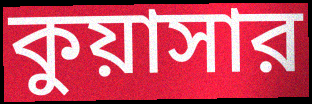
কুয়াসার